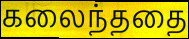
கலைந்ததை